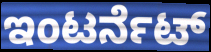
ಇಂಟರ್ನೆಟ್